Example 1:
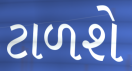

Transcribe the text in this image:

ટાળશે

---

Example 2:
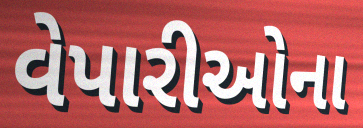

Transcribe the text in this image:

વેપારીઓના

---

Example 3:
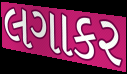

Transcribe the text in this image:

લગાકર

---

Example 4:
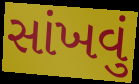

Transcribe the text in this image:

સાંખવું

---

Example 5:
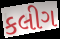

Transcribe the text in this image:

કલીગ